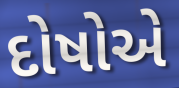
દોષોએ